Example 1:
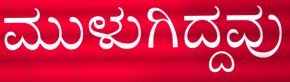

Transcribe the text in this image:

ಮುಳುಗಿದ್ದವು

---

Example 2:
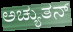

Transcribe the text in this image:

ಅಚ್ಯುತನ್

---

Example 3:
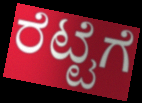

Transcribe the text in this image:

ರೆಟ್ಟೆಗೆ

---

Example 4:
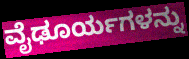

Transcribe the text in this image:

ವೈಢೂರ್ಯಗಳನ್ನು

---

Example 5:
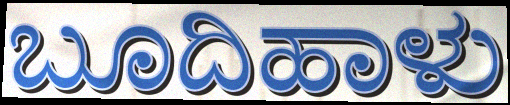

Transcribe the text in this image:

ಬೂದಿಹಾಳು